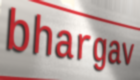
bhargav